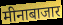
मीनाबाजार